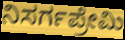
ನಿಸರ್ಗಪ್ರೇಮಿ